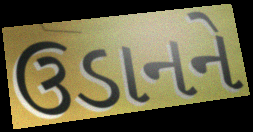
ઉડાનને